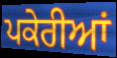
ਪਕੇਰੀਆਂ